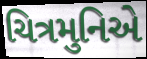
ચિત્રમુનિએ